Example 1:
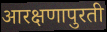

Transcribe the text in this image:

आरक्षणापुरती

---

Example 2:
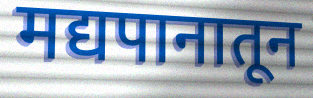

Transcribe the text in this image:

मद्यपानातून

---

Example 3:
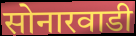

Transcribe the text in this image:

सोनारवाडी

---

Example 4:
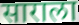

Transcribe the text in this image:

साराला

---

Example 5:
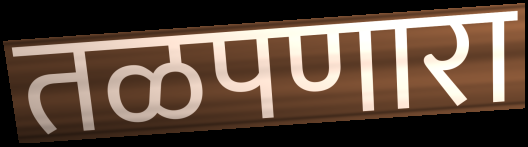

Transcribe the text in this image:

तळपणारा